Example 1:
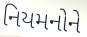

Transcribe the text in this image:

નિયમનોને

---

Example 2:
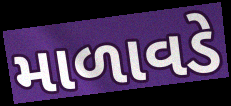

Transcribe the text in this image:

માળાવડે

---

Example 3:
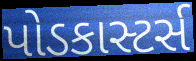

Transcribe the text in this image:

પોડકાસ્ટર્સ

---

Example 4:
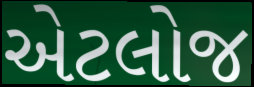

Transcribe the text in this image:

એટલોજ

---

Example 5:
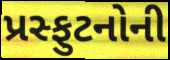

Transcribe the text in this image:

પ્રસ્ફુટનોની